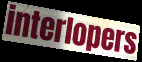
interlopers